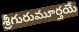
శ్రీగురుమూర్తయే